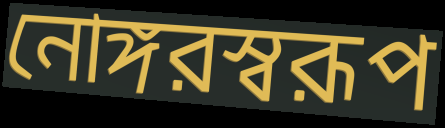
নোঙ্গরস্বরূপ